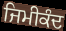
ਜਿਮੀਕੰਦ